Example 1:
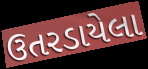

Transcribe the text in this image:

ઉતરડાયેલા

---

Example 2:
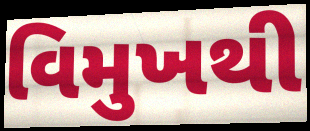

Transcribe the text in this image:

વિમુખથી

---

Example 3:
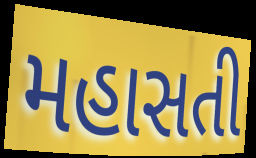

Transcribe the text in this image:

મહાસતી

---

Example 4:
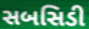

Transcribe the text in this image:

સબસિડી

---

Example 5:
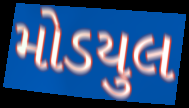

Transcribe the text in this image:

મોડયુલ